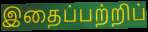
இதைப்பற்றிப்